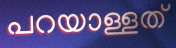
പറയാള്ളത്